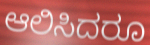
ಆಲಿಸಿದರೂ